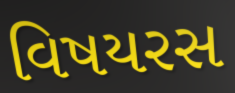
વિષયરસ